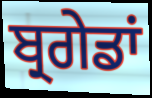
ਬ੍ਰਗੇਡਾਂ